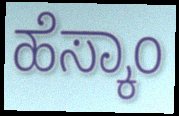
ಹೆಸ್ಕಾಂ